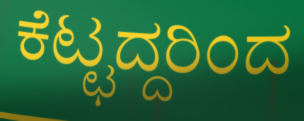
ಕೆಟ್ಟದ್ದರಿಂದ